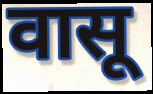
वासू